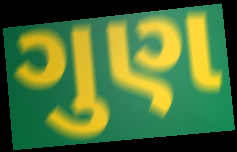
ગુણ